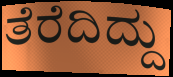
ತೆರೆದಿದ್ದು